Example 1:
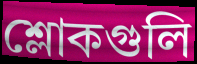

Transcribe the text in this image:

শ্লোকগুলি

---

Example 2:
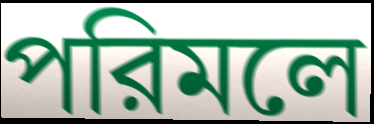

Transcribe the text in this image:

পরিমলে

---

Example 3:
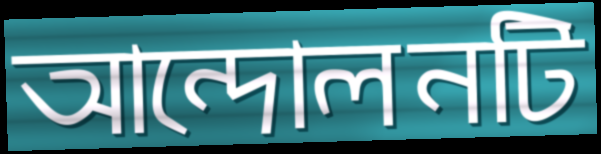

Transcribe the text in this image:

আন্দোলনটি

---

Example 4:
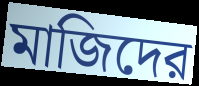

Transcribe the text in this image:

মাজিদের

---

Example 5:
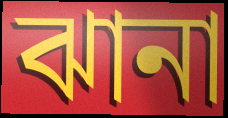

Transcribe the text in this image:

ঝানা